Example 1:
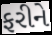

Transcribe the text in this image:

ફરીને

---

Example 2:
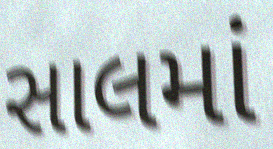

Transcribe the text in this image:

સાલમાં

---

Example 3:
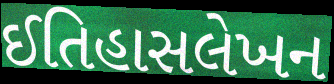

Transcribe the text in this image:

ઈતિહાસલેખન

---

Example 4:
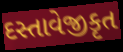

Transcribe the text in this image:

દસ્તાવેજીકૃત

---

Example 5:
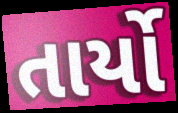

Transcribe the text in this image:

તાર્યો